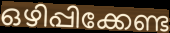
ഒഴിപ്പിക്കേണ്ട